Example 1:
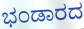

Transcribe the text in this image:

ಭಂಡಾರದ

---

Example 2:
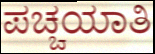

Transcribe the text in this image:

ಪಚ್ಚಯಾತಿ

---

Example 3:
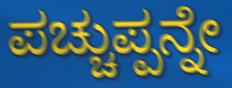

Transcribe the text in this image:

ಪಚ್ಚುಪ್ಪನ್ನೇ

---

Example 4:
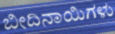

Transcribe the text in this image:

ಬೀದಿನಾಯಿಗಳು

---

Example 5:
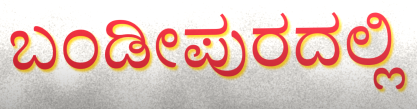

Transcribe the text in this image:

ಬಂಡೀಪುರದಲ್ಲಿ